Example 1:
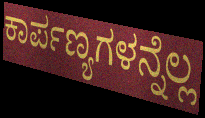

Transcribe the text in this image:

ಕಾರ್ಪಣ್ಯಗಳನ್ನೆಲ್ಲ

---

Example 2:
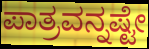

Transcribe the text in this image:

ಪಾತ್ರವನ್ನಷ್ಟೇ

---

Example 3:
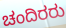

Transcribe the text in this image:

ಚಂದಿರರು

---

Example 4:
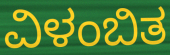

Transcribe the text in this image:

ವಿಳಂಬಿತ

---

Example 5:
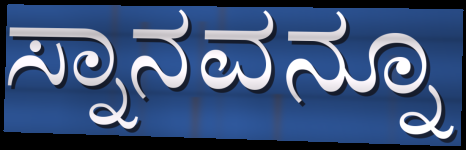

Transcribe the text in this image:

ಸ್ನಾನವನ್ನೂ